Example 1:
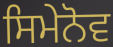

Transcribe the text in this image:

ਸਿਮੇਨੋਵ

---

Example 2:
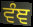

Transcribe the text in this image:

ਵੰਞ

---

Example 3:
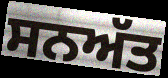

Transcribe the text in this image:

ਸਨਅੱਤ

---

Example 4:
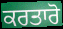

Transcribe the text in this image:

ਕਰਤਾਰੋ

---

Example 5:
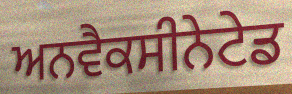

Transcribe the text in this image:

ਅਨਵੈਕਸੀਨੇਟੇਡ